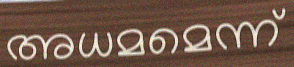
അധമമെന്ന്